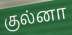
குல்னா